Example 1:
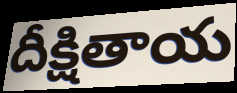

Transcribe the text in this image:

దీక్షితాయ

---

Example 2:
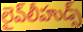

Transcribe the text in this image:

లైవ్‌లీహుడ్స్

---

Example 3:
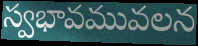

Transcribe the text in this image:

స్వభావమువలన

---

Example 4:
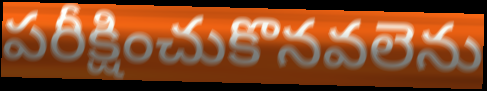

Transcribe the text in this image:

పరీక్షించుకొనవలెను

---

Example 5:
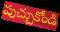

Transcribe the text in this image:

పుచ్చుకోండి